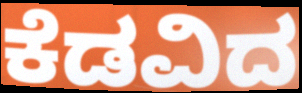
ಕೆಡವಿದ